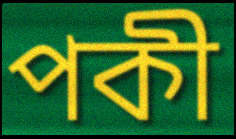
পকী